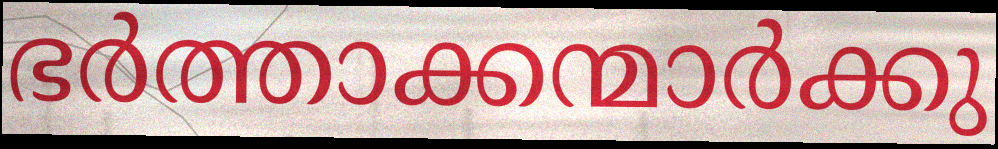
ഭർത്താക്കന്മാർക്കു